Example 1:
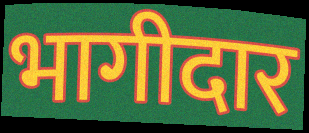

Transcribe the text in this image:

भागीदार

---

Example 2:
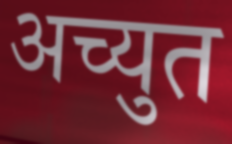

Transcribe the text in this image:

अच्‍युत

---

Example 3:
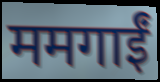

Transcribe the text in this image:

ममगाईं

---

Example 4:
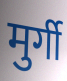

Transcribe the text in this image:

मुर्गी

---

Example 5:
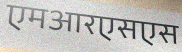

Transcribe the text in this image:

एमआरएसएस